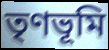
তৃণভূমি